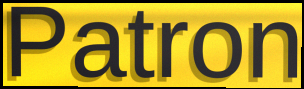
Patron